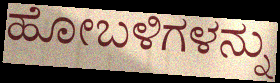
ಹೋಬಳಿಗಳನ್ನು